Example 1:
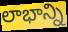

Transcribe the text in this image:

లాభాన్ని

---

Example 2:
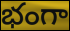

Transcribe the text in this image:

భంగా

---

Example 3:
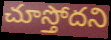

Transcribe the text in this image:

చూస్తోదని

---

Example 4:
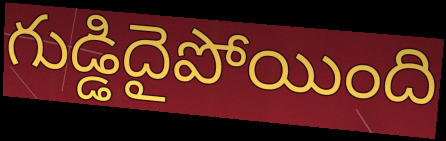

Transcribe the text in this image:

గుడ్డిదైపోయింది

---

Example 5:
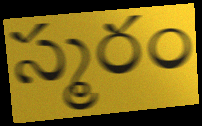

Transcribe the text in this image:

స్మరం